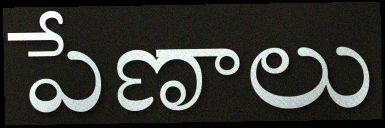
పేణాలు